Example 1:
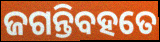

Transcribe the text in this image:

ଜଗନ୍ତିବହତେ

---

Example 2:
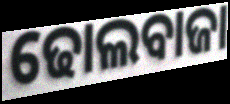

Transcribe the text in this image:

ଢୋଲବାଜା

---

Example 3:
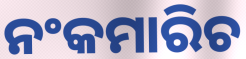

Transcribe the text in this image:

ନଂକମାରିଚ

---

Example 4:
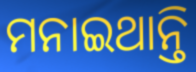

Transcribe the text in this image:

ମନାଇଥାନ୍ତି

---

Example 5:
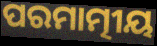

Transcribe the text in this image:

ପରମାତ୍ମୀୟ